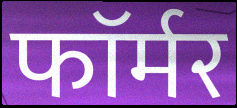
फॉर्मर